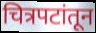
चित्रपटांतून